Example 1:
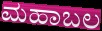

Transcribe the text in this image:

ಮಹಾಬಲ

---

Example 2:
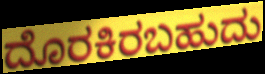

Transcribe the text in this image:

ದೊರಕಿರಬಹುದು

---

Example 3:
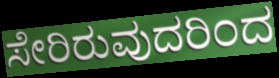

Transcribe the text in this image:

ಸೇರಿರುವುದರಿಂದ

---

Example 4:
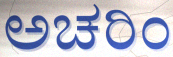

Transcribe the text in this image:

ಅಚರಿಂ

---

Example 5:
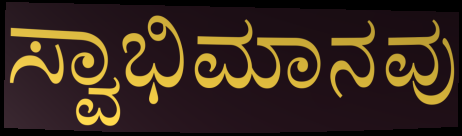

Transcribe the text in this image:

ಸ್ವಾಭಿಮಾನವು